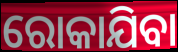
ରୋକାଯିବା